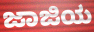
ಜಾಜಿಯ